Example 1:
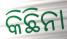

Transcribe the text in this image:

କିଛିନା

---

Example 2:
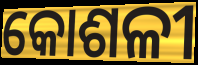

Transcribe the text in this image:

କୋଶଳୀ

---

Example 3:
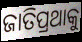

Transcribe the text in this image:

ଜାତିପ୍ରଥାକୁ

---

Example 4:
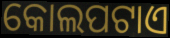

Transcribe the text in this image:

କୋଲପଟାଏ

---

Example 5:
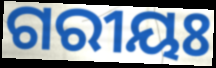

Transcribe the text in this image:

ଗରୀୟଃ